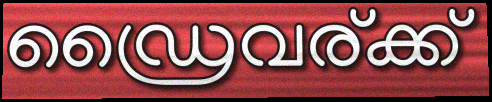
ഡ്രൈവര്ക്ക്